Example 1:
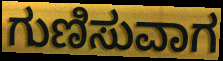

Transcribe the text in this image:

ಗುಣಿಸುವಾಗ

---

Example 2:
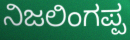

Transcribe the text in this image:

ನಿಜಲಿಂಗಪ್ಪ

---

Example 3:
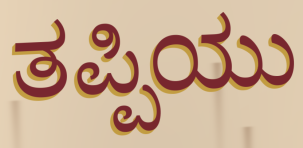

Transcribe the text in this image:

ತಪ್ಪಿಯು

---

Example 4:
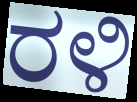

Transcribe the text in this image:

ರಳಿ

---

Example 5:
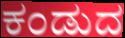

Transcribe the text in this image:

ಕಂಡುದ